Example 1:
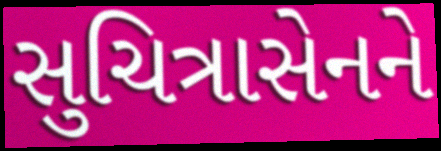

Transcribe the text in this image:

સુચિત્રાસેનને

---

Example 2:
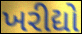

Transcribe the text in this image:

ખરીદ્યો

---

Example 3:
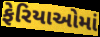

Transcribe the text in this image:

ફેરિયાઓમાં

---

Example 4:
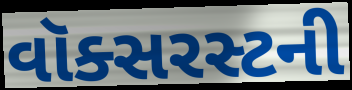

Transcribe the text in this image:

વૉક્સરસ્ટની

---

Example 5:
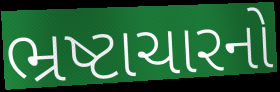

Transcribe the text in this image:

ભ્રષ્ટાચારનો